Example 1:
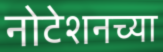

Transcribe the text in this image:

नोटेशनच्या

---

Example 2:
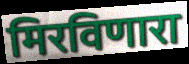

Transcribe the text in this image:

मिरविणारा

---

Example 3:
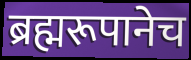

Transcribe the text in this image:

ब्रह्मरूपानेच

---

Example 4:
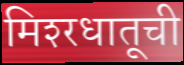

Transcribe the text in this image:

मिश्रधातूची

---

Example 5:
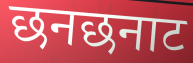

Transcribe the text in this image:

छनछनाट